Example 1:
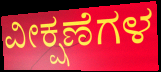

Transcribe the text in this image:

ವೀಕ್ಷಣೆಗಳ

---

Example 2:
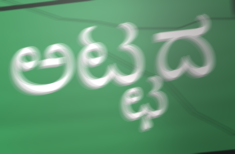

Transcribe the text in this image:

ಅಟ್ಟದ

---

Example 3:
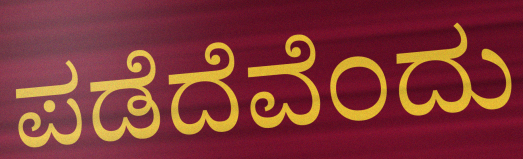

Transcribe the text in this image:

ಪಡೆದೆವೆಂದು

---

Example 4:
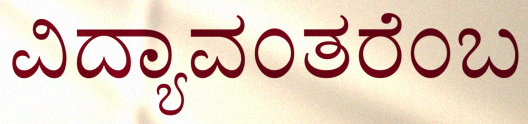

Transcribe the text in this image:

ವಿದ್ಯಾವಂತರೆಂಬ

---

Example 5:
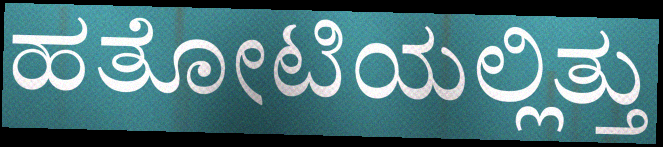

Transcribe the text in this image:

ಹತೋಟಿಯಲ್ಲಿತ್ತು